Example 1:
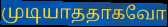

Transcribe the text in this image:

முடியாததாகவோ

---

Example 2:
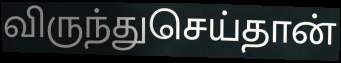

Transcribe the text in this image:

விருந்துசெய்தான்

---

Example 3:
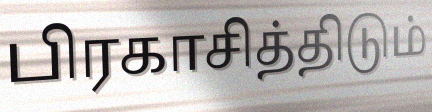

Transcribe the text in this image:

பிரகாசித்திடும்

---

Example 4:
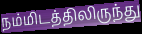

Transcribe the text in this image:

நம்மிடத்திலிருந்து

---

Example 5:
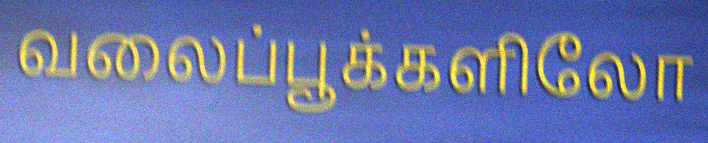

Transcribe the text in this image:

வலைப்பூக்களிலோ